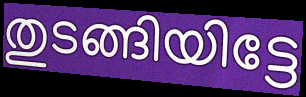
തുടങ്ങിയിട്ടേ